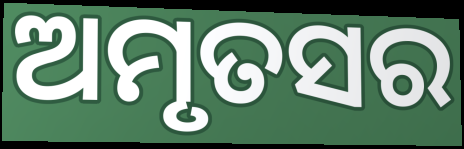
ଅମୃତସର